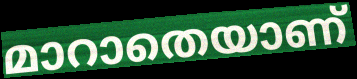
മാറാതെയാണ്